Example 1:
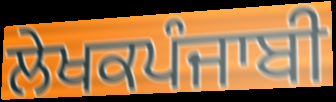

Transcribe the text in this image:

ਲੇਖਕਪੰਜਾਬੀ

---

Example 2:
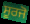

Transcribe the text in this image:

ਸੂਰਜੋ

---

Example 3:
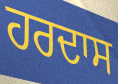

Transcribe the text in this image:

ਹਰਦਾਸ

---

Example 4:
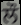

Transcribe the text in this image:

ਲੌ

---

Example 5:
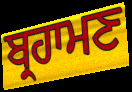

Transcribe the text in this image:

ਬ੍ਰਹਾਮਣ